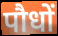
पौधों